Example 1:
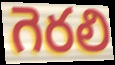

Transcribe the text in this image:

గెరలి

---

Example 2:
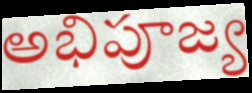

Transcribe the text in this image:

అభిపూజ్య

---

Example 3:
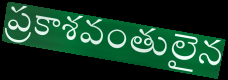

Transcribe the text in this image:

ప్రకాశవంతులైన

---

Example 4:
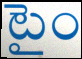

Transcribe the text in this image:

టైం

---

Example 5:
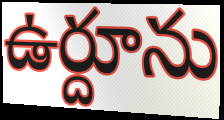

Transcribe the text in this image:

ఉర్దూను